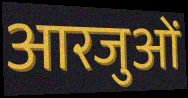
आरजुओं